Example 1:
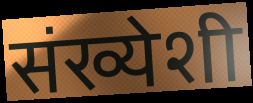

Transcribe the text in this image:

संख्येशी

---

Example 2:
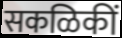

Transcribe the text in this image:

सकळिकीं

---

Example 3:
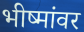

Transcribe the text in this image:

भीष्मांवर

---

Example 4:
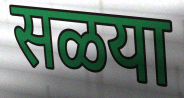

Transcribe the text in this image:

सळया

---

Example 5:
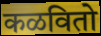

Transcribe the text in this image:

कळवितो